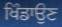
ਖਿੰਡਾਉਣ